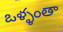
ఒళ్ళంతా